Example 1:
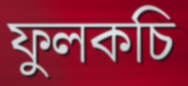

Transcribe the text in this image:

ফুলকচি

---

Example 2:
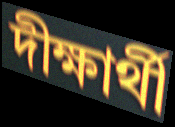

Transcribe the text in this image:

দীক্ষার্থী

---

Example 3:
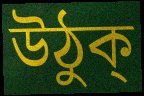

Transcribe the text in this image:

উঠুক্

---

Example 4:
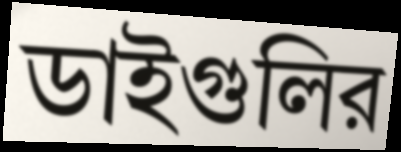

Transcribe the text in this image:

ডাইগুলির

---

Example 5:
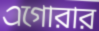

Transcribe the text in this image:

এগোরার